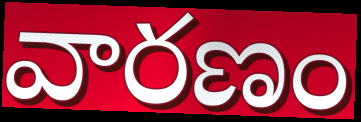
వారణం